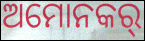
ଅମୋନକର୍